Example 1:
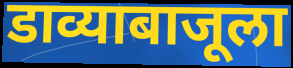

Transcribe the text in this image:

डाव्याबाजूला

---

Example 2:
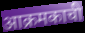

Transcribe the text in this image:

आक्रमकाची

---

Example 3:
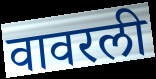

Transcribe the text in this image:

वावरली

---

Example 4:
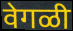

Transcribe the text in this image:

वेगळी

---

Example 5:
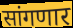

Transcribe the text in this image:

सांगणार